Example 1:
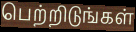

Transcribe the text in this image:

பெற்றிடுங்கள்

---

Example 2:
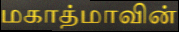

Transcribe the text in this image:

மகாத்மாவின்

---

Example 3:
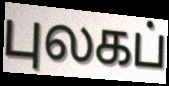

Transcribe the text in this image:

புலகப்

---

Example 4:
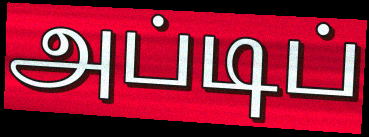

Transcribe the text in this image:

அப்டிப்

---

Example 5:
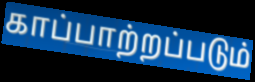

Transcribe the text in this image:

காப்பாற்றப்படும்